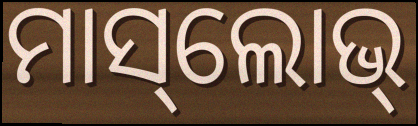
ମାସ୍‌ଲୋଭ୍